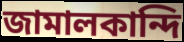
জামালকান্দি